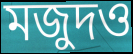
মজুদও